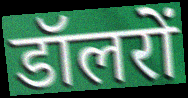
डॉलरों